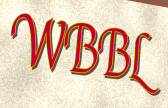
WBBL